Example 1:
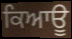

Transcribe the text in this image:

ਕਿਆਊ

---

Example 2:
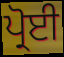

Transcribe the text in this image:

ਪ੍ਰੋਈ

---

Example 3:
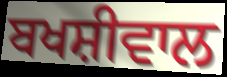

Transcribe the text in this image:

ਬਖਸ਼ੀਵਾਲ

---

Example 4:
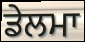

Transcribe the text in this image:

ਡੇਲਮਾ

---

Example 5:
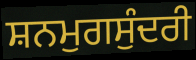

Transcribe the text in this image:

ਸ਼ਨਮੁਗਸੁੰਦਰੀ